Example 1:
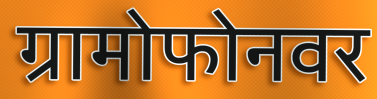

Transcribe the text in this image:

ग्रामोफोनवर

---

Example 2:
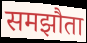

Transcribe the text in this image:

समझौता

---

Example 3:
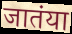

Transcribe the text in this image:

जातंया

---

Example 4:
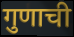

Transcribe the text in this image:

गुणाची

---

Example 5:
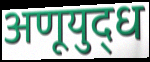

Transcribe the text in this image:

अणूयुद्ध